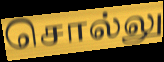
சொல்லு